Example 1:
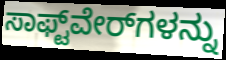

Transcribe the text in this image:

ಸಾಫ್ಟ್‌ವೇರ್‌ಗಳನ್ನು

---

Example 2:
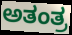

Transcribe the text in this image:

ಅತಂತ್ರ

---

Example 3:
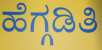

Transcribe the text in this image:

ಹೆಗ್ಗಡಿತಿ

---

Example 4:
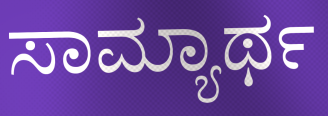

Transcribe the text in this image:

ಸಾಮ್ಯಾರ್ಥ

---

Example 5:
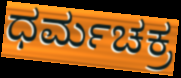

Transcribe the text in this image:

ಧರ್ಮಚಕ್ರ